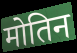
मोतिन